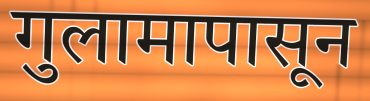
गुलामापासून